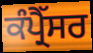
ਕੰਪ੍ਰੈੱਸਰ